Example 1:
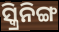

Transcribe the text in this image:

ସ୍କ୍ରିନିଙ୍ଗ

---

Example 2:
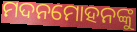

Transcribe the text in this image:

ମଦନମୋହନଙ୍କୁ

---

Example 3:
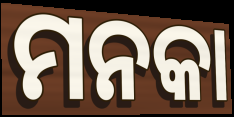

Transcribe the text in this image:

ମନକା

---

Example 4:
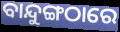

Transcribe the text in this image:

ବାନ୍ଦୁଙ୍ଗଠାରେ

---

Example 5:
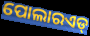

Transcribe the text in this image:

ପୋଲାରଏଡ୍